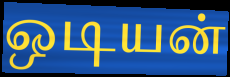
ஒடியன்